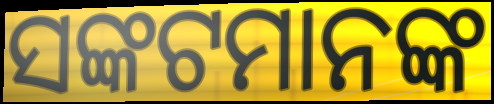
ସଙ୍କଟମାନଙ୍କ